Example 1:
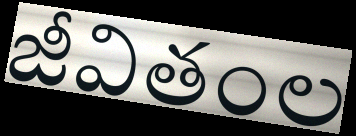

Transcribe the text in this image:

జీవితంల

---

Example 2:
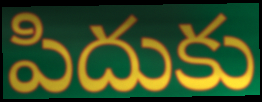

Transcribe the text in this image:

పిదుకు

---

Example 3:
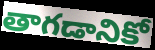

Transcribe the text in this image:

తాగడానికో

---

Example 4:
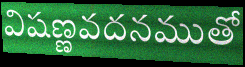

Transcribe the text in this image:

విషణ్ణవదనముతో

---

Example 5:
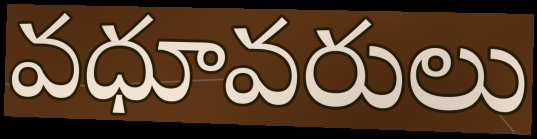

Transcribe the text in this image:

వధూవరులు